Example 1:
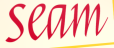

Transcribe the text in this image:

seam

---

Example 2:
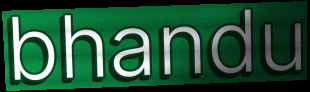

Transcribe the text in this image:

bhandu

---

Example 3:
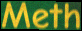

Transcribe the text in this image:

Meth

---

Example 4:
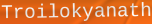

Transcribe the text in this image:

Troilokyanath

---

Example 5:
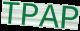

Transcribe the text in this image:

TPAP